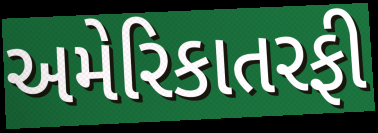
અમેરિકાતરફી